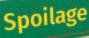
Spoilage